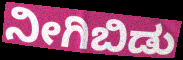
ನೀಗಿಬಿಡು